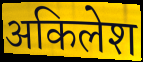
अकिलेश